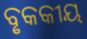
ବୃକକୀୟ